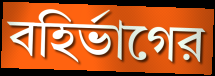
বহির্ভাগের